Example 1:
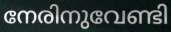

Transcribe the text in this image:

നേരിനുവേണ്ടി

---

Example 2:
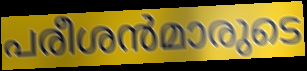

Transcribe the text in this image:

പരീശൻമാരുടെ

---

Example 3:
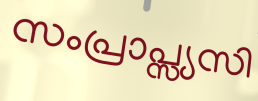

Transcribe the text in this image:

സംപ്രാപ്സ്യസി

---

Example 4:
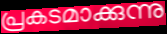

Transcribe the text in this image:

പ്രകടമാക്കുന്നു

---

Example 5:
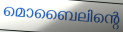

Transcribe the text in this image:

മൊബൈലിന്റെ